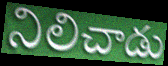
నిలిచాడు